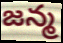
జన్మ